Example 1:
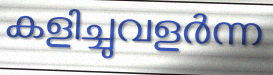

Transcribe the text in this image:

കളിച്ചുവളർന്ന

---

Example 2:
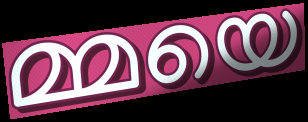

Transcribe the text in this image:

മ്മയെ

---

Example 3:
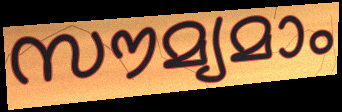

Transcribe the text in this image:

സൗമ്യമാം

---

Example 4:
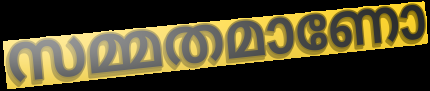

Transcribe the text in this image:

സമ്മതമാണോ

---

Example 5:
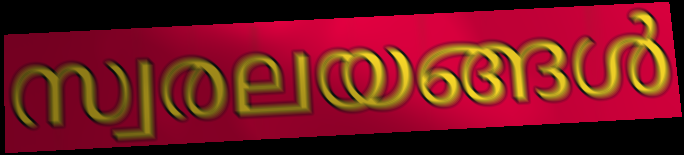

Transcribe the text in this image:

സ്വരലയങ്ങൾ